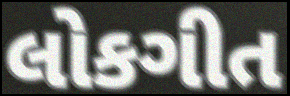
લોકગીત